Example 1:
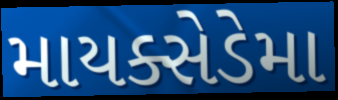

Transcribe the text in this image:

માયક્સેડેમા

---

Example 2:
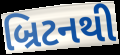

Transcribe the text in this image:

બ્રિટનથી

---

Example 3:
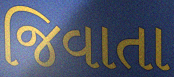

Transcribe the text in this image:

જિવાતા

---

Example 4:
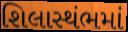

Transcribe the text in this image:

શિલાસ્થંભમાં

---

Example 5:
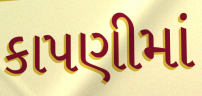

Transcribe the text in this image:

કાપણીમાં